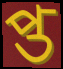
প্ত